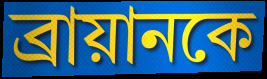
ব্রায়ানকে